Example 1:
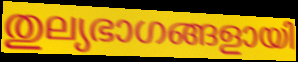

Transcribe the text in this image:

തുല്യഭാഗങ്ങളായി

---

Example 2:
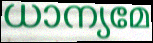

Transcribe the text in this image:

ധാന്യമേ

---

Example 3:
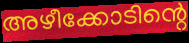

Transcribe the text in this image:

അഴീക്കോടിന്റെ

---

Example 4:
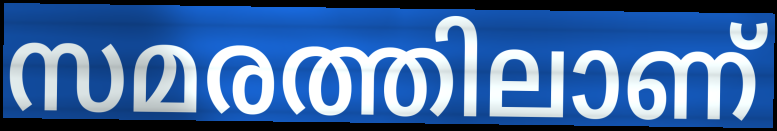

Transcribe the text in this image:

സമരത്തിലാണ്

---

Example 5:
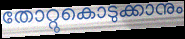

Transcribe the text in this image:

തോറ്റുകൊടുക്കാനും